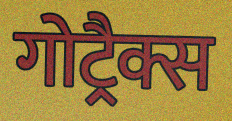
गोट्रैक्स